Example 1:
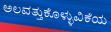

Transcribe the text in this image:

ಅಲವತ್ತುಕೊಳ್ಳುವಿಕೆಯ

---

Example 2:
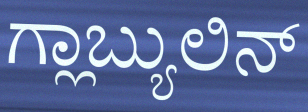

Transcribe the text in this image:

ಗ್ಲಾಬ್ಯುಲಿನ್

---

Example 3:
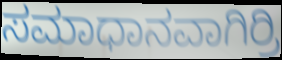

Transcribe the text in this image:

ಸಮಾಧಾನವಾಗಿರ್ರಿ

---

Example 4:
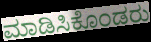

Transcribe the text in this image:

ಮಾಡಿಸಿಕೊಂಡರು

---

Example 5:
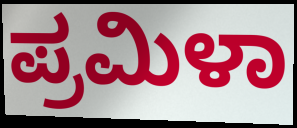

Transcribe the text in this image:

ಪ್ರಮಿಳಾ